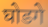
घोडगे